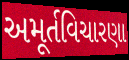
અમૂર્તવિચારણા